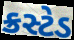
ક્રસ્ટેડ